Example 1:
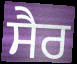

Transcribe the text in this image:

ਸੈਰ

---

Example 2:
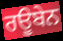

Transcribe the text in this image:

ਰਊਬੇਨ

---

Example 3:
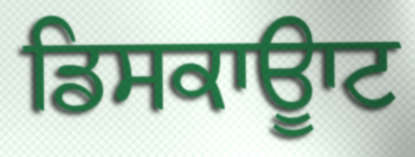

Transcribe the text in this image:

ਡਿਸਕਾਊਾਟ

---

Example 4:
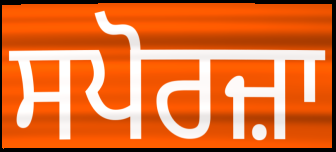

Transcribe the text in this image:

ਸਪੋਰਜ਼ਾ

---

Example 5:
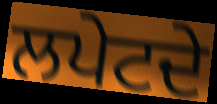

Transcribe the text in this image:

ਲਪੇਟਦੇ